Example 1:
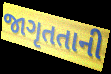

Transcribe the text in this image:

જાગૃતતાની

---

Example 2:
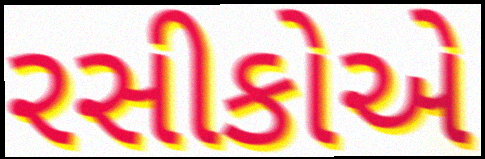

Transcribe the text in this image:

રસીકોએ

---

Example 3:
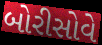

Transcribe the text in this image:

બોરીસોવે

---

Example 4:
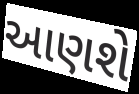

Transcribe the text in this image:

આણશે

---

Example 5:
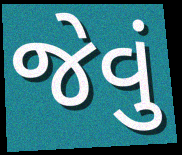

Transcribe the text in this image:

જેવું